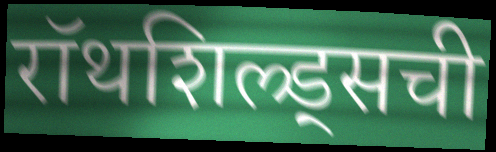
रॉथशिल्ड्सची